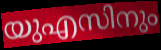
യുഎസിനും